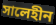
সালেহীন